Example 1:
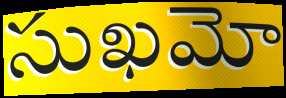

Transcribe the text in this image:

సుఖమో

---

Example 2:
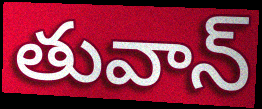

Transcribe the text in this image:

తువాన్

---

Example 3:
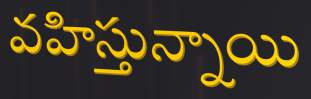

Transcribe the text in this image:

వహిస్తున్నాయి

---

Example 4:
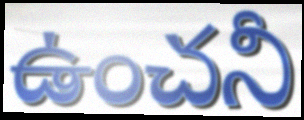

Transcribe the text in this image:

ఉంచనీ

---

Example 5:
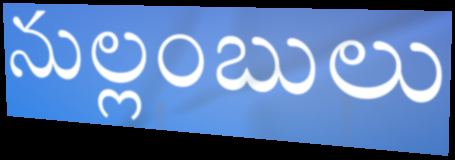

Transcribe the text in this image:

నుల్లంబులు